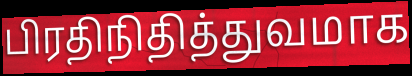
பிரதிநிதித்துவமாக